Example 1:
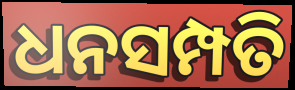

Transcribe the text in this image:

ଧନସମ୍ପତି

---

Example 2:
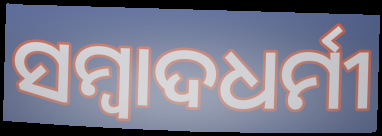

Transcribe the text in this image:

ସମ୍ବାଦଧର୍ମୀ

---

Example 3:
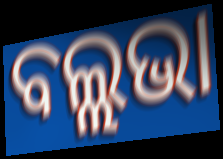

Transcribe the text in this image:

ବଲ୍ଲଭା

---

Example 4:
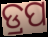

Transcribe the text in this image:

ଡ୍ରପ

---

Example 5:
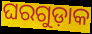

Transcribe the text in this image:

ଘରଗୁଡ଼ାକ